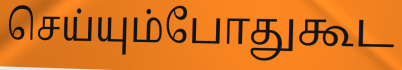
செய்யும்போதுகூட